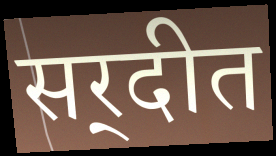
सर्दीत